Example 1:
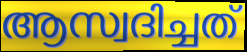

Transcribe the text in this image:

ആസ്വദിച്ചത്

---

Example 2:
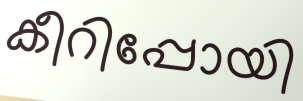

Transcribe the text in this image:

കീറിപ്പോയി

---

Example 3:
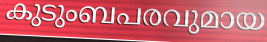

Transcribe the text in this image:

കുടുംബപരവുമായ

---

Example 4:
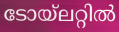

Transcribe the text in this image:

ടോയ്ലറ്റിൽ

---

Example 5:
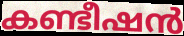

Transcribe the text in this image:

കണ്ടീഷൻ